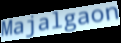
Majalgaon